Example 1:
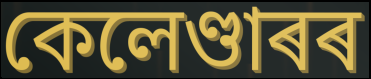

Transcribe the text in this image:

কেলেণ্ডাৰৰ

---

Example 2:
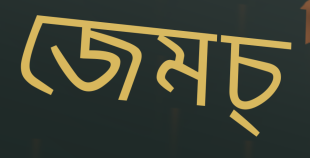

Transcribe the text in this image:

জেমচ্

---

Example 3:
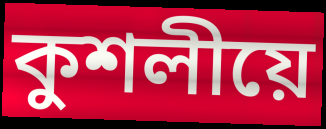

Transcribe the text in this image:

কুশলীয়ে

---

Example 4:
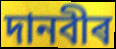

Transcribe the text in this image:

দানবীৰ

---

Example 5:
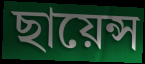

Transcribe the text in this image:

ছায়েন্স